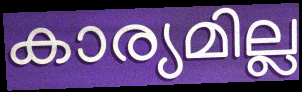
കാര്യമില്ല